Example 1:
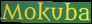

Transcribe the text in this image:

Mokuba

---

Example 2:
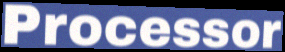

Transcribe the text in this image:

Processor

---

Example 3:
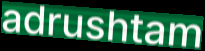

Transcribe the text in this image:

adrushtam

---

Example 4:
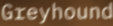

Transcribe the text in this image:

Greyhound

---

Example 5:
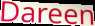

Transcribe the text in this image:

Dareen